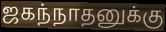
ஜகந்நாதனுக்கு